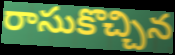
రాసుకొచ్చిన